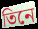
তিনে